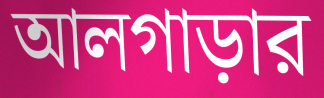
আলগাড়ার